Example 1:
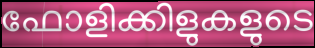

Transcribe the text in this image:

ഫോളിക്കിളുകളുടെ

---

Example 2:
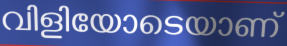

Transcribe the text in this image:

വിളിയോടെയാണ്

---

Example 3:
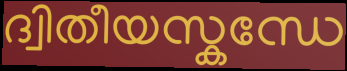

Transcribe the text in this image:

ദ്വിതീയസ്കന്ധേ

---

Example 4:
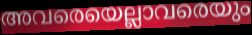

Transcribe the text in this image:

അവരെയെല്ലാവരെയും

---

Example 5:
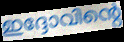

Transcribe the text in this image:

ഇദ്ദോവിന്റെ